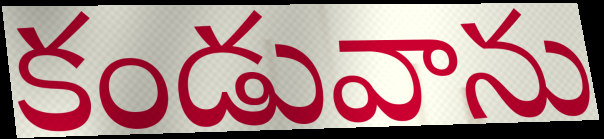
కండువాను